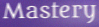
Mastery